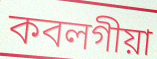
কবলগীয়া